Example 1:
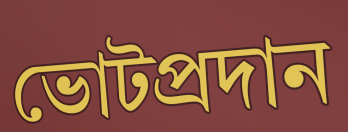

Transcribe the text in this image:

ভোটপ্রদান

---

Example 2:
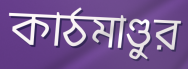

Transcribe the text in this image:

কাঠমাণ্ডুর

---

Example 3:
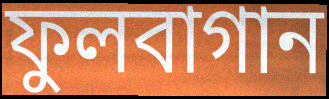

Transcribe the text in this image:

ফুলবাগান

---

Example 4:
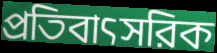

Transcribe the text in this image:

প্রতিবাৎসরিক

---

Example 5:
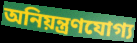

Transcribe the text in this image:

অনিয়ন্ত্রণযোগ্য